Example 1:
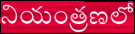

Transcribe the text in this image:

నియంత్రణలో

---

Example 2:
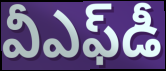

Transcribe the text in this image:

వీఎఫ్‌డీ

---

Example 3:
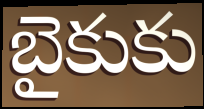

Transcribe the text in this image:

బైకుకు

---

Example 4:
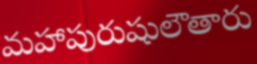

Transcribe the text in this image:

మహాపురుషులౌతారు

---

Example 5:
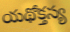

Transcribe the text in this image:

యథోక్తస్య